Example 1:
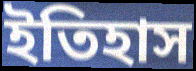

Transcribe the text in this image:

ইতিহাস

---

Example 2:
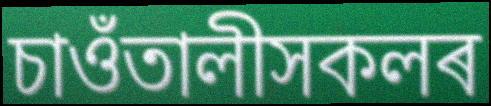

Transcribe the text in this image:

চাওঁতালীসকলৰ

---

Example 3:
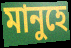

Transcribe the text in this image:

মানুহে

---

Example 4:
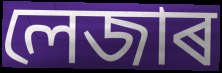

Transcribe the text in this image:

লেজাৰ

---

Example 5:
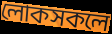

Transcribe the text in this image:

লোকসকলে